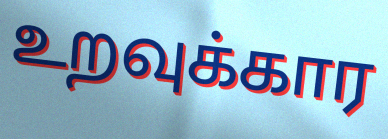
உறவுக்கார